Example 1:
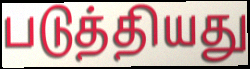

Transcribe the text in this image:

படுத்தியது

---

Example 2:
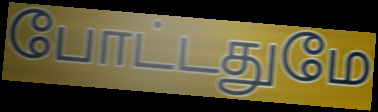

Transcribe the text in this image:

போட்டதுமே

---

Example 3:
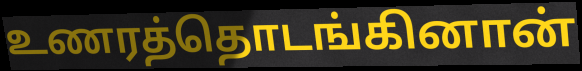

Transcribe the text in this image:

உணரத்தொடங்கினான்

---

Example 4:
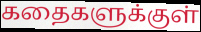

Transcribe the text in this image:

கதைகளுக்குள்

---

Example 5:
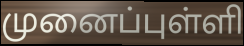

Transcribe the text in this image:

முனைப்புள்ளி